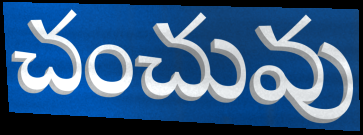
చంచువు